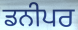
ਡਨੀਪਰ